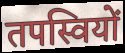
तपस्वियों